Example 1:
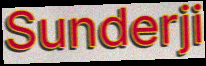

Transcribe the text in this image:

Sunderji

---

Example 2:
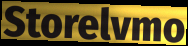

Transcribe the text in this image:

Storelvmo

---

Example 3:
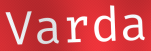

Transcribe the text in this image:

Varda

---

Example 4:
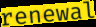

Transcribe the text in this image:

renewal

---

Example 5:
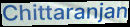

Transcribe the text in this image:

Chittaranjan